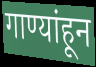
गाण्यांहून